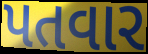
પતવાર